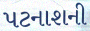
પટનાશની